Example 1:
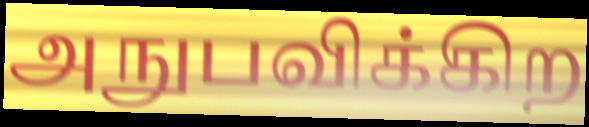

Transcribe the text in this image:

அநுபவிக்கிற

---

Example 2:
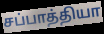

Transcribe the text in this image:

சப்பாத்தியா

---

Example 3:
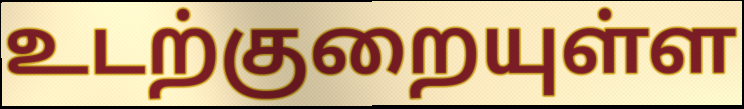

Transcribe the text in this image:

உடற்குறையுள்ள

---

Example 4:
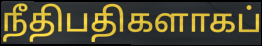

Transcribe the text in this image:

நீதிபதிகளாகப்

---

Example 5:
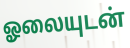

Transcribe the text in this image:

ஓலையுடன்